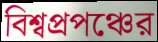
বিশ্বপ্রপঞ্চের